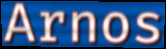
Arnos